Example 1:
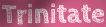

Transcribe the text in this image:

Trinitate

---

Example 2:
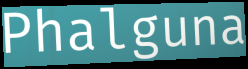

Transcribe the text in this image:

Phalguna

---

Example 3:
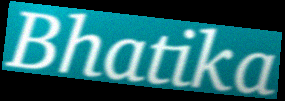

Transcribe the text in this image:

Bhatika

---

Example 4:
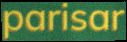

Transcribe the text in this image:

parisar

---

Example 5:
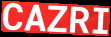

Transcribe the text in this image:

CAZRI